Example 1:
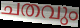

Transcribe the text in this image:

ചതവും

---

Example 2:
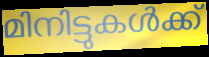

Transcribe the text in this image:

മിനിട്ടുകൾക്ക്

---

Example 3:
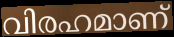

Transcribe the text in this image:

വിരഹമാണ്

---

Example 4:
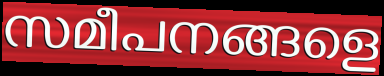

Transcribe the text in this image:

സമീപനങ്ങളെ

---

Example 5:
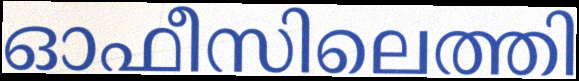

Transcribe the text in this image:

ഓഫീസിലെത്തി